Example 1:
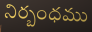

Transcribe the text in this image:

నిర్బంధము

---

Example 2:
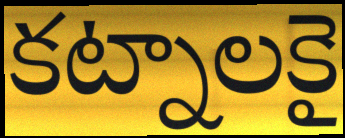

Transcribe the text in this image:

కట్నాలకై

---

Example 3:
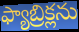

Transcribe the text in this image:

ఫ్యాబ్రిక్లను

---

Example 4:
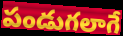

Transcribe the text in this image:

పండుగలాగే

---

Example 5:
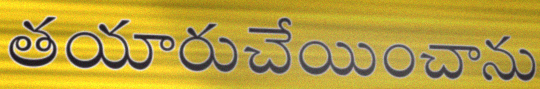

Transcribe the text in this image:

తయారుచేయించాను